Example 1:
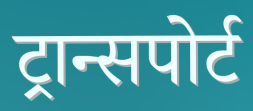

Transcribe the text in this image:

ट्रान्सपोर्ट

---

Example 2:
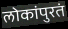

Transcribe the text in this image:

लोकांपुरतं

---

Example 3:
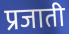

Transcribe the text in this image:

प्रजाती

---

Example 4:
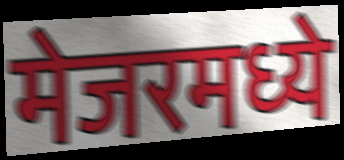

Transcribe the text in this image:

मेजरमध्ये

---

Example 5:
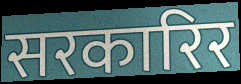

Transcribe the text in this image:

सरकारिर